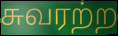
சுவரற்ற